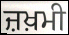
ਜ਼ਖ਼ਮੀ